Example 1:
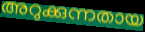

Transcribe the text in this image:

അറുക്കുന്നതായ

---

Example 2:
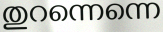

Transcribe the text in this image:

തുറന്നെന്നെ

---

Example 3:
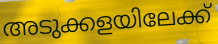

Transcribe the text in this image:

അടുക്കളയിലേക്ക്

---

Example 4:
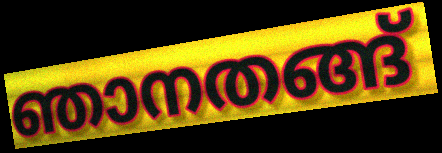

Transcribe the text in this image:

ഞാനതങ്ങ്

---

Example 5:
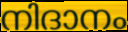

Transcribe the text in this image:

നിദാനം